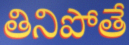
తినిపోతే